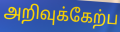
அறிவுக்கேற்ப